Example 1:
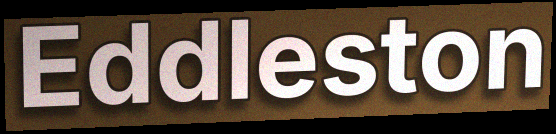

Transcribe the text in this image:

Eddleston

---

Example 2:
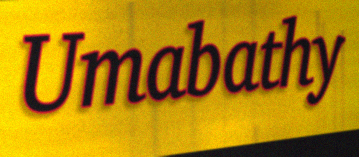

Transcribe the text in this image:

Umabathy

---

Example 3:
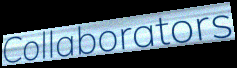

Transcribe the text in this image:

Collaborators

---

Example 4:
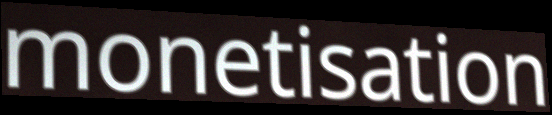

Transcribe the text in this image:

monetisation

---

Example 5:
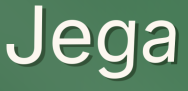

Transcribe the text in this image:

Jega